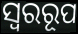
ସ୍ୱରରୂପ